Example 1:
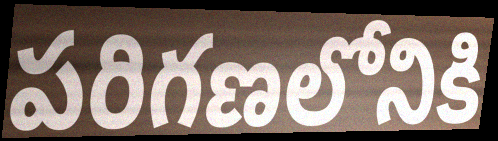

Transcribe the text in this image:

పరిగణలోనికి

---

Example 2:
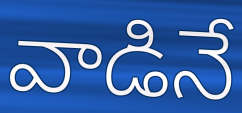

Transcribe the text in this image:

వాడినే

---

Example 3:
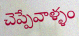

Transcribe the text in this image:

చెప్పేవాళ్ళం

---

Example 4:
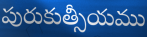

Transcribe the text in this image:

పురుకుత్సీయము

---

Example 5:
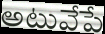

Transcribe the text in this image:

అటువేపే